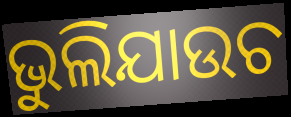
ଭୁଲିଯାଉଚ